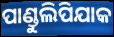
ପାଣ୍ଡୁଲିପିଯାକ